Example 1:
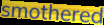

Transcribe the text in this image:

smothered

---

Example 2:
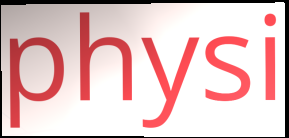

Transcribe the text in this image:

physi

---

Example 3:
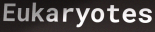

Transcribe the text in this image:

Eukaryotes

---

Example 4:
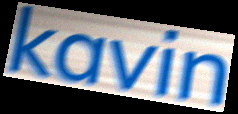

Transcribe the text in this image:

kavin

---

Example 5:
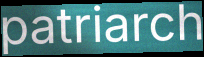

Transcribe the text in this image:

patriarch